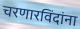
चरणारविंदांना